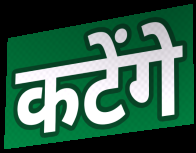
कटेंगे